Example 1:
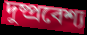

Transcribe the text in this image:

দুষ্প্রবেশ্য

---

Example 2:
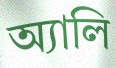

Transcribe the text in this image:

অ্যালি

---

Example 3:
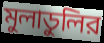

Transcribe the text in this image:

মুলাডুলির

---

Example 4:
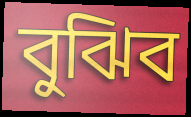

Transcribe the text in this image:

বুঝিব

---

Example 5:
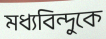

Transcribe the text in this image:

মধ্যবিন্দুকে